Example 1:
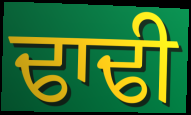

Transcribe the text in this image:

ਢਾਢੀ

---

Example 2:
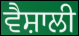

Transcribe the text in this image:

ਵੈਸ਼ਾਲੀ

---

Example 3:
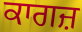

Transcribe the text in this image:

ਕਾਗਜ਼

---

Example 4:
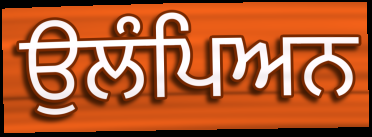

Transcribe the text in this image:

ਉਲੰਪਿਅਨ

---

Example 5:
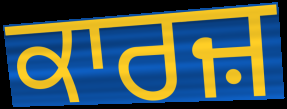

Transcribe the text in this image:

ਕਾਰਜ਼